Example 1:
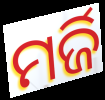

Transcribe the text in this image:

ମର୍ଜି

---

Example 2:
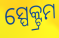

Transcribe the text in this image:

ସ୍ପେକ୍ଟ୍ରମ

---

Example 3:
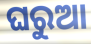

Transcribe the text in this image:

ଘରୁଆ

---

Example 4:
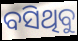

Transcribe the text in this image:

ବସିଥିବୁ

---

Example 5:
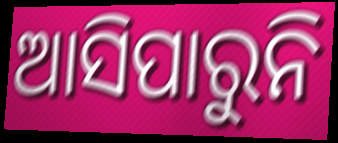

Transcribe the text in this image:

ଆସିପାରୁନି